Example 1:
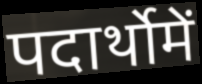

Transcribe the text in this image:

पदार्थोमें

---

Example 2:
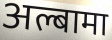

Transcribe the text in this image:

अल्बामा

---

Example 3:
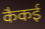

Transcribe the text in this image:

कैकई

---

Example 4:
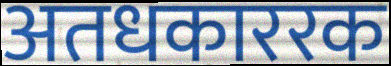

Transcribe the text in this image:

अतधकाररक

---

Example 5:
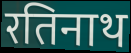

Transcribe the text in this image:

रतिनाथ